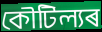
কৌটিল্যৰ